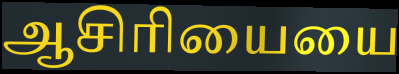
ஆசிரியையை